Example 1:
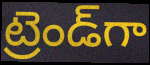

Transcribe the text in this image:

ట్రెండ్‌గా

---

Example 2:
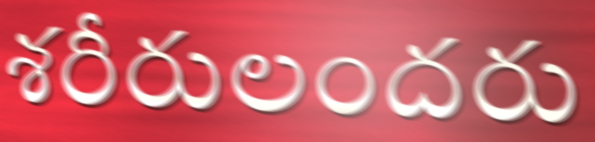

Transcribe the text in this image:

శరీరులందరు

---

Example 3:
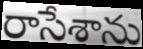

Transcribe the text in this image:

రాసేశాను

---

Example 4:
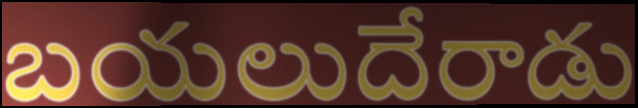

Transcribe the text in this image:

బయలుదేరాడు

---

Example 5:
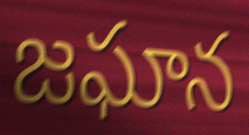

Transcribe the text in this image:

జఘాన